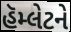
હૅમ્લેટને